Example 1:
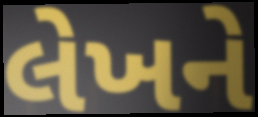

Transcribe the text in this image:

લેખને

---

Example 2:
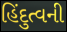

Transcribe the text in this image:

હિંદુત્વની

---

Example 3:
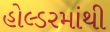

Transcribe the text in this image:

હોલ્ડરમાંથી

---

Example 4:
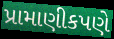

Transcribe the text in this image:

પ્રામાણીકપણે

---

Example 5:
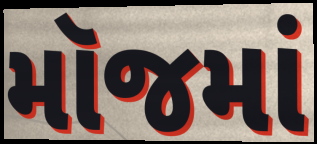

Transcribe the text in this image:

મૉજમાં